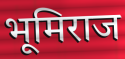
भूमिराज